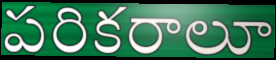
పరికరాలూ